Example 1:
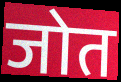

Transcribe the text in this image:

जोत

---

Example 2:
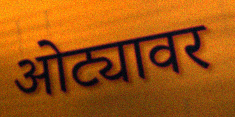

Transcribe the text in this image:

ओट्यावर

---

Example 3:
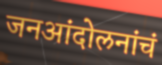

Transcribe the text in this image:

जनआंदोलनांचं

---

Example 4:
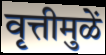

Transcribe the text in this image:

वृत्तीमुळें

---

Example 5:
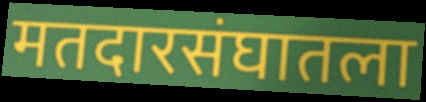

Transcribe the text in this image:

मतदारसंघातला